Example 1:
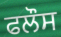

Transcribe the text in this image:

ਫਲੌਸ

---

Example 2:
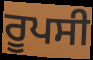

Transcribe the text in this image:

ਰੂਪਸੀ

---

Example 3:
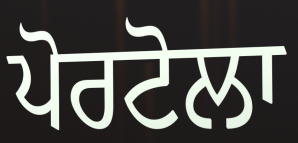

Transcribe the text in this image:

ਪੋਰਟੋਲਾ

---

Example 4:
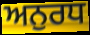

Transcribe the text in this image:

ਅਨੁਰਧ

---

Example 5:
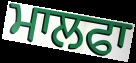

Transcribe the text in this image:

ਮਾਲਫਾ